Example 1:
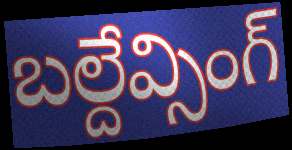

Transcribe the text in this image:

బల్దేవ్సింగ్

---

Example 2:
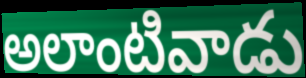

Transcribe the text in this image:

అలాంటివాడు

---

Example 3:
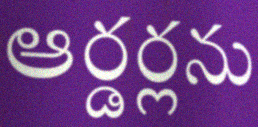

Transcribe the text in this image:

ఆర్డర్లను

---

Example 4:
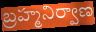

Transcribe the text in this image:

బ్రహ్మనిర్వాణ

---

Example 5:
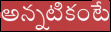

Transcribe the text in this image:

అన్నటికంటే